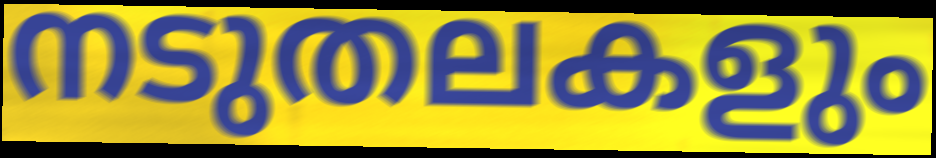
നടുതലകളും